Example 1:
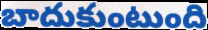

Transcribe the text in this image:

బాదుకుంటుంది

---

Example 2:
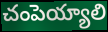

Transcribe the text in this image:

చంపెయ్యాలి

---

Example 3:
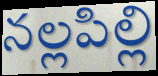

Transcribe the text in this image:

నల్లపిల్లి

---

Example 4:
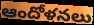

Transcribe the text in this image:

ఆందోళనలు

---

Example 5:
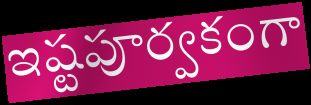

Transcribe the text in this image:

ఇష్టపూర్వకంగా